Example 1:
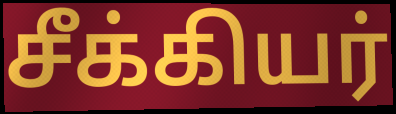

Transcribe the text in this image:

சீக்கியர்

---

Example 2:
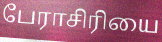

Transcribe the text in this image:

பேராசிரியை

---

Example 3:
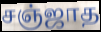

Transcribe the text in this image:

சஞ்ஜாத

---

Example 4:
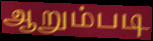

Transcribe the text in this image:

ஆறும்படி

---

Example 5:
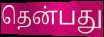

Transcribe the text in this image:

தென்பது